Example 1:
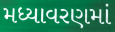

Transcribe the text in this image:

મધ્યાવરણમાં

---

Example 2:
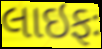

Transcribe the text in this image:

લાઇફઃ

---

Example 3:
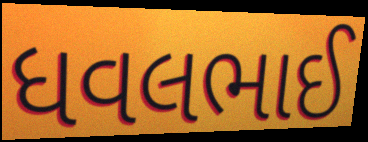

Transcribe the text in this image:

ધવલભાઈ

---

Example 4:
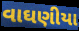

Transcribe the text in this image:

વાઘણીયા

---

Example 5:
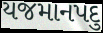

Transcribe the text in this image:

યજમાનપદુ